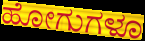
ಹೋಗುಗಳೂ